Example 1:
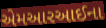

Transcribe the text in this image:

એમઆરઆઈના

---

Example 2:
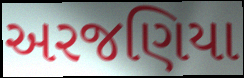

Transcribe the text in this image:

અરજણિયા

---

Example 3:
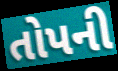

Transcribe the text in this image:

તોપની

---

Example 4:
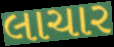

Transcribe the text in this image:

લાચાર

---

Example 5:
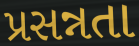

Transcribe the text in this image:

પ્રસન્નતા